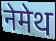
नेमेथ